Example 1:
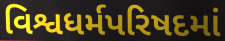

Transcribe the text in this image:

વિશ્વધર્મપરિષદમાં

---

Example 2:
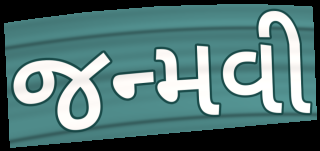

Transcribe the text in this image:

જન્મવી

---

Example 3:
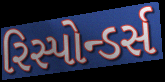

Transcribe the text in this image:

રિસ્પોન્ડર્સ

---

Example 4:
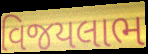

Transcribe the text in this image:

વિજયલાભ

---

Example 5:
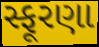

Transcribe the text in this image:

સ્ફૂરણા